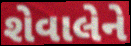
શેવાલેને